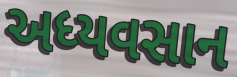
અધ્યવસાન